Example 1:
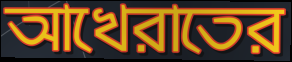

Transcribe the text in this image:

আখেরাতের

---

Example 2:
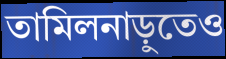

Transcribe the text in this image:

তামিলনাড়ুতেও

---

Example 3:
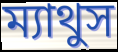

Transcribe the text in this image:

ম্যাথুস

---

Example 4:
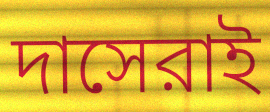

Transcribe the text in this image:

দাসেরাই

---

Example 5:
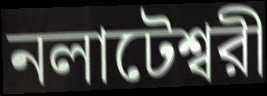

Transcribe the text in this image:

নলাটেশ্বরী